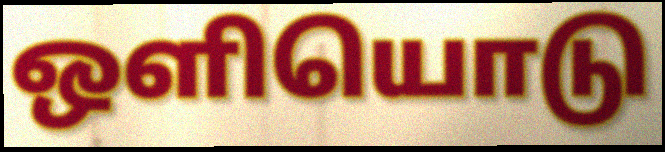
ஒளியொடு